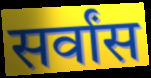
सर्वांस